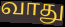
வாது